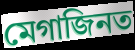
মেগাজিনত